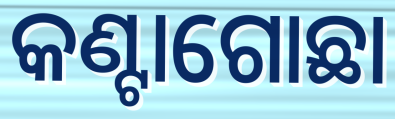
କଣ୍ଟାଗୋଛା